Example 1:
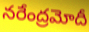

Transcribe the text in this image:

నరేంద్రమోదీ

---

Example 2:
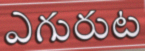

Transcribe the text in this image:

ఎగురుట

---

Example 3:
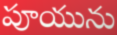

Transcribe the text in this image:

పూయును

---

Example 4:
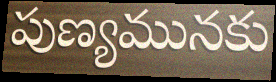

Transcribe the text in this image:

పుణ్యమునకు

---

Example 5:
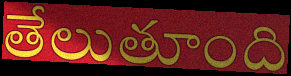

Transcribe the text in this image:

తేలుతూంది